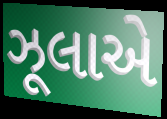
ઝૂલાએ